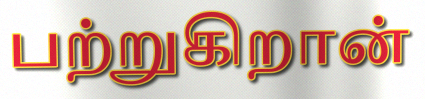
பற்றுகிறான்